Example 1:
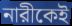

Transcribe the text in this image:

নারীকেই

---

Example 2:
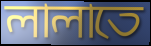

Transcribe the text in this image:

লালাতে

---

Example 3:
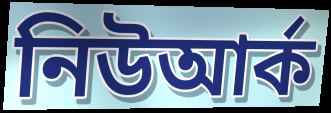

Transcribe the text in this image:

নিউআর্ক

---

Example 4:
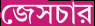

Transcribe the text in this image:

জেসচার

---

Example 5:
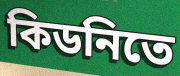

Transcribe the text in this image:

কিডনিতে